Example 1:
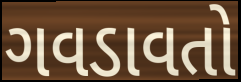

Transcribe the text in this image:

ગવડાવતો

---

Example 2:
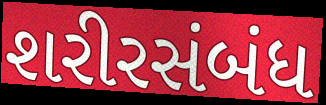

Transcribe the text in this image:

શરીરસંબંધ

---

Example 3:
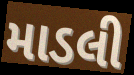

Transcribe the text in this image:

માડલી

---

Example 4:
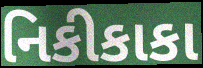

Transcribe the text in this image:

નિકીકાકા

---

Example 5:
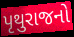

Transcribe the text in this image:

પૃથુરાજનો